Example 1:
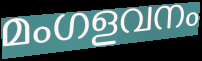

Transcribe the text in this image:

മംഗളവനം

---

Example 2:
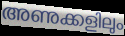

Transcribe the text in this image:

അണുക്കളിലും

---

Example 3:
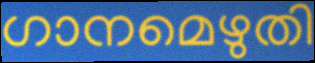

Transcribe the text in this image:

ഗാനമെഴുതി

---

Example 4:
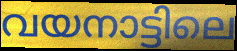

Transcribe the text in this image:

വയനാട്ടിലെ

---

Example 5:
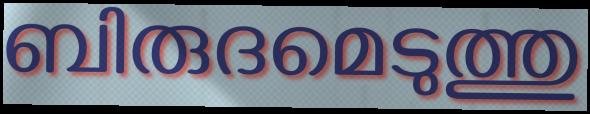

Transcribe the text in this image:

ബിരുദമെടുത്തു